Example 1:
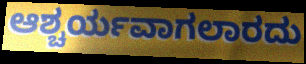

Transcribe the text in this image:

ಆಶ್ಚರ್ಯವಾಗಲಾರದು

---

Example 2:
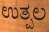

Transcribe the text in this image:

ಉತ್ಪಲ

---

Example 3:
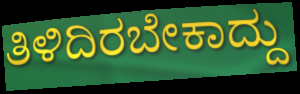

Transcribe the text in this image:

ತಿಳಿದಿರಬೇಕಾದ್ದು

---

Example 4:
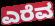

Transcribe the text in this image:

ಎರೆವ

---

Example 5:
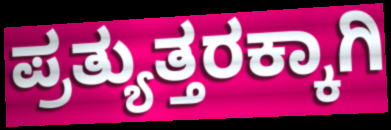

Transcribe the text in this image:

ಪ್ರತ್ಯುತ್ತರಕ್ಕಾಗಿ